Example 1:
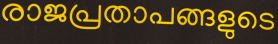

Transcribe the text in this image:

രാജപ്രതാപങ്ങളുടെ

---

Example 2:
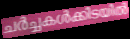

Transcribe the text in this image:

ചർച്ചകൾക്കിടയിൽ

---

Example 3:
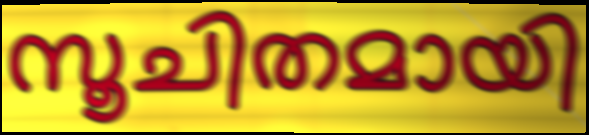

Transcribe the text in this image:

സൂചിതമായി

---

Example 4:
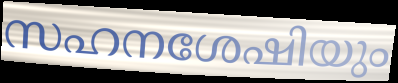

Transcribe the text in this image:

സഹനശേഷിയും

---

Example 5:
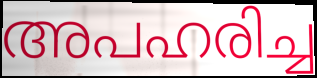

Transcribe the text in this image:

അപഹരിച്ച